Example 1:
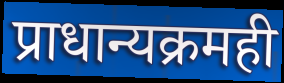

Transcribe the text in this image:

प्राधान्यक्रमही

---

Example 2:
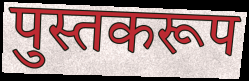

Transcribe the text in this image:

पुस्तकरूप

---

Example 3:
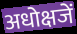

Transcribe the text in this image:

अधोक्षजें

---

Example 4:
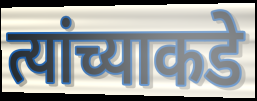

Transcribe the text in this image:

त्यांच्याकडे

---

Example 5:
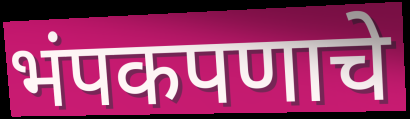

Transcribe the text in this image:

भंपकपणाचे